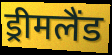
ड्रीमलैंड